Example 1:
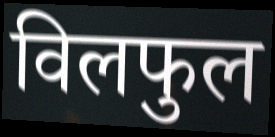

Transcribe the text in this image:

विलफुल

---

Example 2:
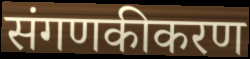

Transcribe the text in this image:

संगणकीकरण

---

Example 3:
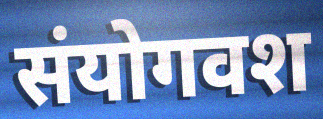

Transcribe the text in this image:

संयोगवश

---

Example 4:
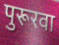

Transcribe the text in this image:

पुरूरवा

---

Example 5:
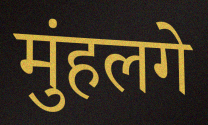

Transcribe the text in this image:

मुंहलगे